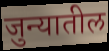
जुन्यातील